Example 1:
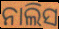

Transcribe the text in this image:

ନାଲିସ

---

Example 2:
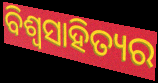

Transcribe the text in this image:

ବିଶ୍ୱସାହିତ୍ୟର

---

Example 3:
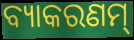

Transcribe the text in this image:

ବ୍ୟାକରଣମ୍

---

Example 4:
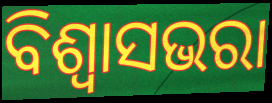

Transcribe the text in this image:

ବିଶ୍ୱାସଭରା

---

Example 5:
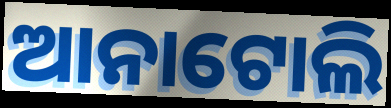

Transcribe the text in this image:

ଆନାଟୋଲି